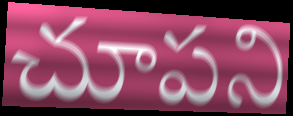
చూపని